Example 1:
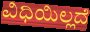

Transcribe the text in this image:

ವಿಧಿಯಿಲ್ಲದೆ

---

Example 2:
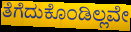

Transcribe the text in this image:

ತೆಗೆದುಕೊಂಡಿಲ್ಲವೇ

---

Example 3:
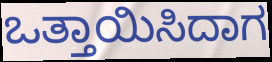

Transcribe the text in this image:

ಒತ್ತಾಯಿಸಿದಾಗ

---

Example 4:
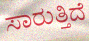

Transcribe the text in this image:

ಸಾರುತ್ತಿದೆ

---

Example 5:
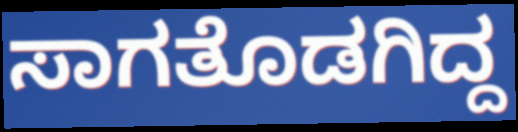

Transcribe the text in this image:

ಸಾಗತೊಡಗಿದ್ದ